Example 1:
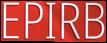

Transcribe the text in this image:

EPIRB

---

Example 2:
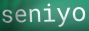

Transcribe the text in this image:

seniyo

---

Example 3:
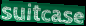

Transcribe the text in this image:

suitcase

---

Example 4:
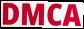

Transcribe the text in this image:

DMCA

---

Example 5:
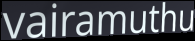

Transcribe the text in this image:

vairamuthu